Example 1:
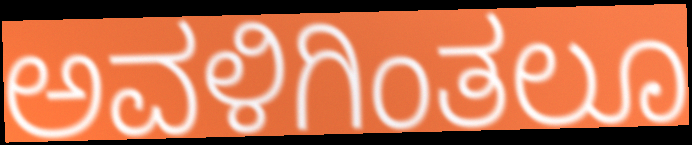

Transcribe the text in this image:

ಅವಳಿಗಿಂತಲೂ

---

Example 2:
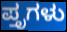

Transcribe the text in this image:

ಪ್ತೃಗಳು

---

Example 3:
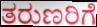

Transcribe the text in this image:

ತರುಣರಿಗೆ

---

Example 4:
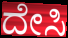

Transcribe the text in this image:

ದೇಸಿ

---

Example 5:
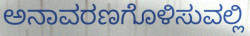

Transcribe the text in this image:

ಅನಾವರಣಗೊಳಿಸುವಲ್ಲಿ